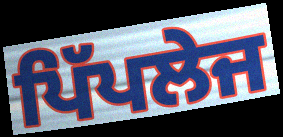
ਪਿੱਪਲੇਜ